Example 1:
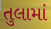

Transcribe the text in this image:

તુલામાં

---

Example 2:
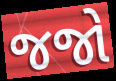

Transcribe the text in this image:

જજો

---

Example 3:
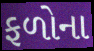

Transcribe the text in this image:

ફળોના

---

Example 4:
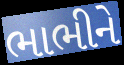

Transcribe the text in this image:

ભાભીને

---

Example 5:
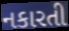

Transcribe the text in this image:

નકારતી